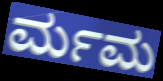
ರ್ಮಮ